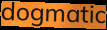
dogmatic